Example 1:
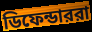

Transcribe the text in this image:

ডিফেন্ডাররা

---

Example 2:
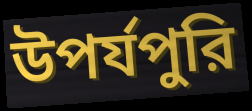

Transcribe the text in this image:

উপর্যপুরি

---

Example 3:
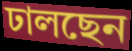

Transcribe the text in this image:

ঢালছেন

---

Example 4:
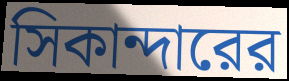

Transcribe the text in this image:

সিকান্দারের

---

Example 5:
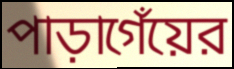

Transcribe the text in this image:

পাড়াগেঁয়ের